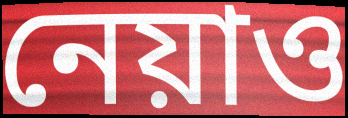
নেয়াও